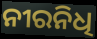
ନୀରନିଧି